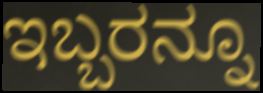
ಇಬ್ಬರನ್ನೂ